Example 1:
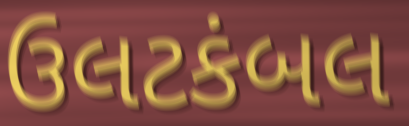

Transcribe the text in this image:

ઉલટકંબલ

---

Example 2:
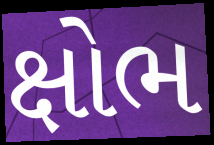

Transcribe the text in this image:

ક્ષોભ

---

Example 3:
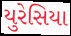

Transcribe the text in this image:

યુરેસિયા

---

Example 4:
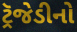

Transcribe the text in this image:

ટ્રૅજેડીનો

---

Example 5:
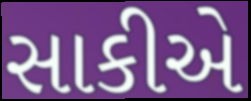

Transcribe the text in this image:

સાકીએ